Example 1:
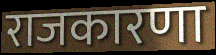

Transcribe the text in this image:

राजकारणा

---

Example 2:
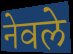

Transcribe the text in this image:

नेवले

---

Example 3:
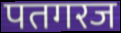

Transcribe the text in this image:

पतगरज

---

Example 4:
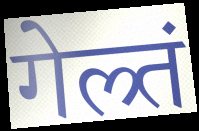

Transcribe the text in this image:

गेल्तं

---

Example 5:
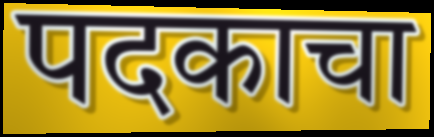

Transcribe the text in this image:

पदकाचा